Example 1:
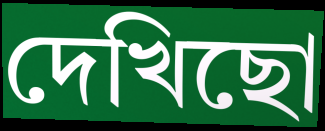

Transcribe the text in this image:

দেখিছো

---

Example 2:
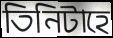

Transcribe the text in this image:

তিনিটাহে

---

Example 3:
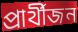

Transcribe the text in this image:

প্ৰাৰ্থীজন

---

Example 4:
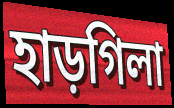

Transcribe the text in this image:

হাড়গিলা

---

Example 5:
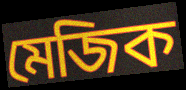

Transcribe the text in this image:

মেজিক